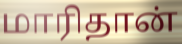
மாரிதான்